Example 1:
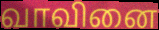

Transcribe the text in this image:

வாவினை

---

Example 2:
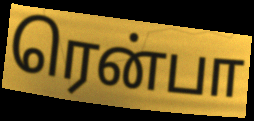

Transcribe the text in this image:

ரென்பா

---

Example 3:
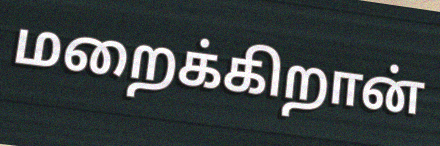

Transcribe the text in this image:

மறைக்கிறான்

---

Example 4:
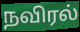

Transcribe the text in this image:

நவிரல்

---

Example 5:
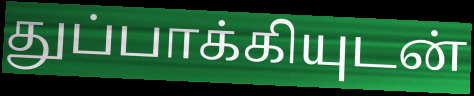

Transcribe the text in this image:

துப்பாக்கியுடன்